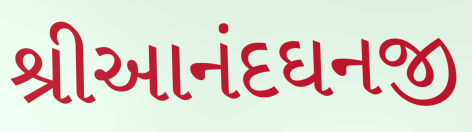
શ્રીઆનંદઘનજી